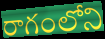
రాగంలోని